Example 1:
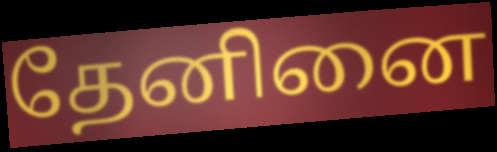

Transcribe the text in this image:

தேனினை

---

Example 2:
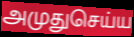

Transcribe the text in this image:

அமுதுசெய்ய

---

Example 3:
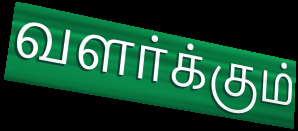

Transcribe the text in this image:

வளர்க்கும்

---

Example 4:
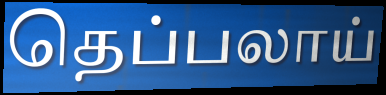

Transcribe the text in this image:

தெப்பலாய்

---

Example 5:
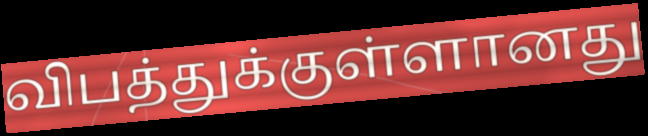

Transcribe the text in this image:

விபத்துக்குள்ளானது